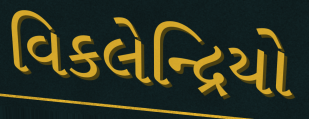
વિકલેન્દ્રિયો